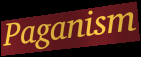
Paganism